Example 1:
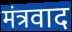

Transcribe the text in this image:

मंत्रवाद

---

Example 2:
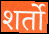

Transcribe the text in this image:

शर्तो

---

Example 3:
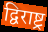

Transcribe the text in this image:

द्विराष्ट्र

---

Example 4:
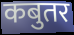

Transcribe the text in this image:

कबुतर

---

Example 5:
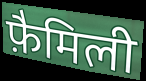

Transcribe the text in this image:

फ़ैमिली